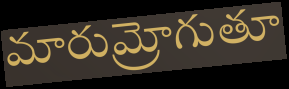
మారుమ్రోగుతూ